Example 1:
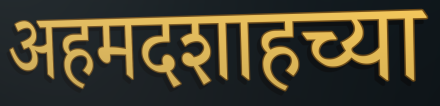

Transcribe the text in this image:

अहमदशाहच्या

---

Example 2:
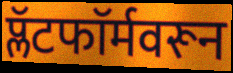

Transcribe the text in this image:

प्लॅटफॉर्मवरून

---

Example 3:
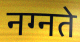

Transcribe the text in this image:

नग्नते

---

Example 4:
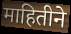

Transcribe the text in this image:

माहितीने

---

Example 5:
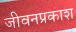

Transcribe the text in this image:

जीवनप्रकाश